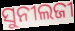
ସୁନୀଲଜୀ